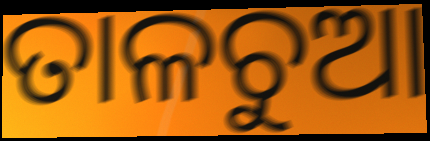
ତାଳଚୁଆ